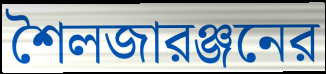
শৈলজারঞ্জনের